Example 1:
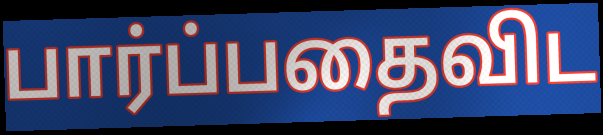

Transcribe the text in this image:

பார்ப்பதைவிட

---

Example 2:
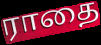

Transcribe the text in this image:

ராதை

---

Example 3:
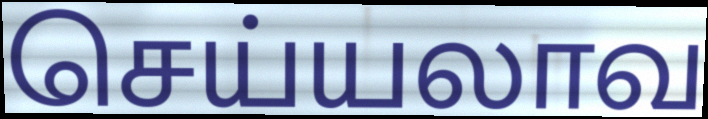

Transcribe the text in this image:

செய்யலாவ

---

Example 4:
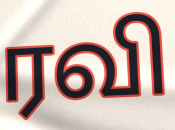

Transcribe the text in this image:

ரவி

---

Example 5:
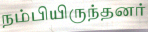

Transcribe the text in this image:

நம்பியிருந்தனர்